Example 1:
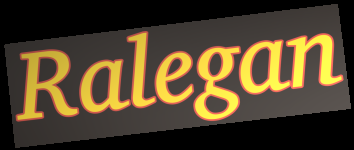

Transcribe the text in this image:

Ralegan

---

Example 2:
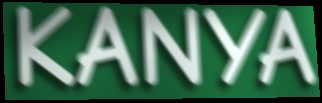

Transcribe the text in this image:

KANYA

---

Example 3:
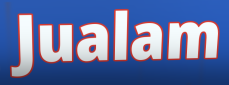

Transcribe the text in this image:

Jualam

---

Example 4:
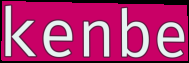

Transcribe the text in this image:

kenbe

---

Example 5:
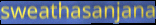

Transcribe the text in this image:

sweathasanjana